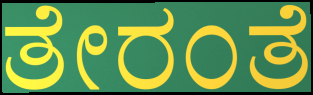
ತೇರಂತೆ